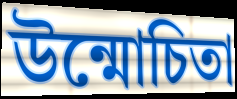
উন্মোচিতা